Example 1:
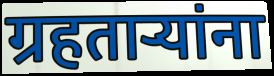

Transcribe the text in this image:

ग्रहताऱ्यांना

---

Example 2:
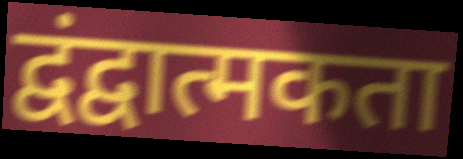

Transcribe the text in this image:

द्वंद्वात्मकता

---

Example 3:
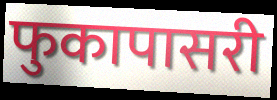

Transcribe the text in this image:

फुकापासरी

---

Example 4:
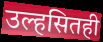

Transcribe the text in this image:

उल्हसितही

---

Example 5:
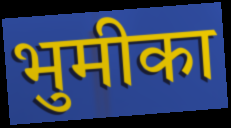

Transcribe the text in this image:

भुमीका